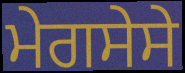
ਮੇਗਸੇਸੇ